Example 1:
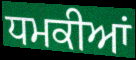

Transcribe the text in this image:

ਧਮਕੀਆਂ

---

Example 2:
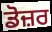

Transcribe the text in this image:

ਡੋਜ਼ਰ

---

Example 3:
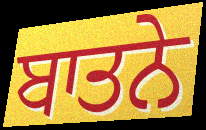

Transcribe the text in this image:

ਬਾਤਨੇ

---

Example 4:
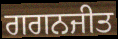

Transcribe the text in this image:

ਗਗਨਜੀਤ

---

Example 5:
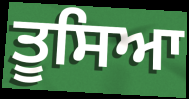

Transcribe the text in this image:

ਤੂਸਿਆ